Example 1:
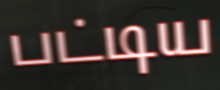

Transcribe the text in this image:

பட்டிய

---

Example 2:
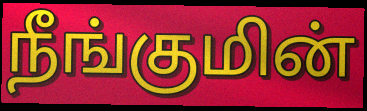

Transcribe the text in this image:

நீங்குமின்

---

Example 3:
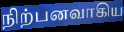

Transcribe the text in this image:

நிற்பனவாகிய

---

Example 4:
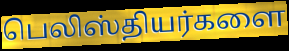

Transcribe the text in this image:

பெலிஸ்தியர்களை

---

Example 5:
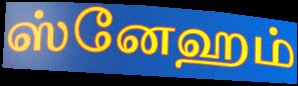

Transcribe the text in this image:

ஸ்னேஹம்